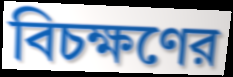
বিচক্ষণের